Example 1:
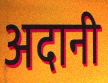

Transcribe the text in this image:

अदानी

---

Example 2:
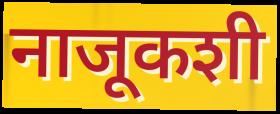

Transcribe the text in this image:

नाजूकशी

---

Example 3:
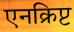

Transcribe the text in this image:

एनक्रिप्ट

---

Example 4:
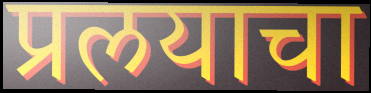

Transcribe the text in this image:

प्रलयाचा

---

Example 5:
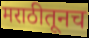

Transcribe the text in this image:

मराठीतूनच